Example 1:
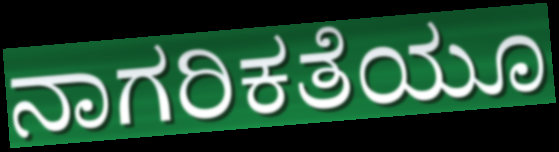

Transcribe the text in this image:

ನಾಗರಿಕತೆಯೂ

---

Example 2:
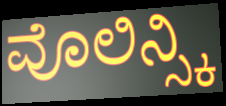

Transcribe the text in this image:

ವೊಲಿನ್ಸ್ಕಿ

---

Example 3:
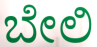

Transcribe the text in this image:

ಬೇಲಿ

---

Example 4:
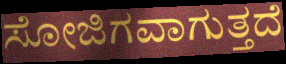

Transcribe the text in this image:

ಸೋಜಿಗವಾಗುತ್ತದೆ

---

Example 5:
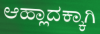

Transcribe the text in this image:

ಆಹ್ಲಾದಕ್ಕಾಗಿ